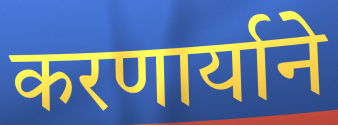
करणार्याने